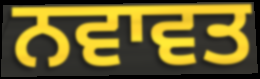
ਨਵਾਵਤ